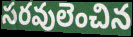
సరవులెంచిన